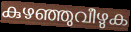
കുഴഞ്ഞുവീഴുക